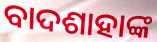
ବାଦଶାହାଙ୍କ